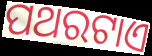
ପଥରଟାଏ